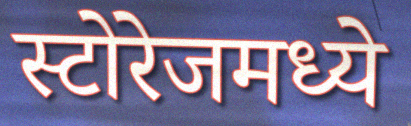
स्टोरेजमध्ये